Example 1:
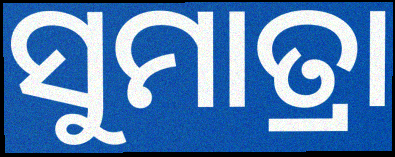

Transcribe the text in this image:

ସୁମାତ୍ରା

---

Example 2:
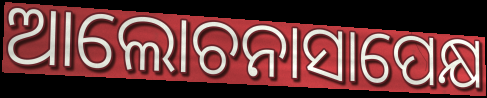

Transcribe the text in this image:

ଆଲୋଚନାସାପେକ୍ଷ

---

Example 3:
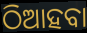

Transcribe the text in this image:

ଠିଆହବା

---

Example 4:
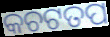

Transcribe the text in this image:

କଚଟତପ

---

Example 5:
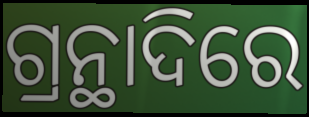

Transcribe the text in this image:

ଗ୍ରନ୍ଥାଦିରେ